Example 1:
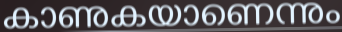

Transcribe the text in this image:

കാണുകയാണെന്നും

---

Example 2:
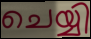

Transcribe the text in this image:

ചെയ്യി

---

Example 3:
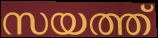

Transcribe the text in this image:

സയത്ത്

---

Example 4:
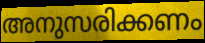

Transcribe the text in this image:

അനുസരിക്കണം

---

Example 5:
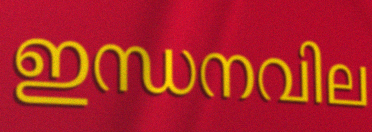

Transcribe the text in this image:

ഇന്ധനവില